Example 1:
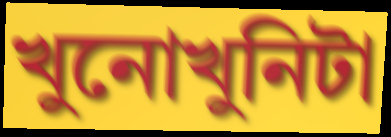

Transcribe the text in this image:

খুনোখুনিটা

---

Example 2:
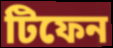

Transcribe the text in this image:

টিফেন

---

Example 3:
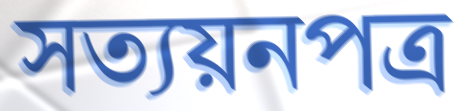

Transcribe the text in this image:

সত্যয়নপত্র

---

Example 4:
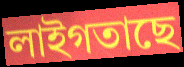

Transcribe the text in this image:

লাইগতাছে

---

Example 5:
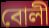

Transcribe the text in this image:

বোলী